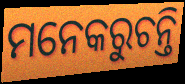
ମନେକରୁଚନ୍ତି